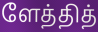
ளேத்தித்